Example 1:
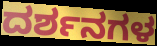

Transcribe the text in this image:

ದರ್ಶನಗಳ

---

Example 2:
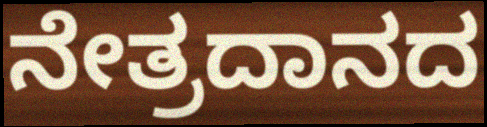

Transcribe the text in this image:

ನೇತ್ರದಾನದ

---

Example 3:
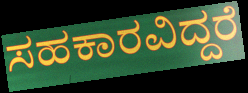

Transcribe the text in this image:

ಸಹಕಾರವಿದ್ದರೆ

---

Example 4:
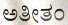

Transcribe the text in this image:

ಅತೀತಂ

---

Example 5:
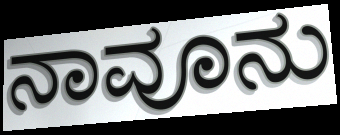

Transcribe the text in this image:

ನಾವೂನು